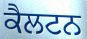
ਕੈਲਟਨ